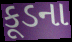
કૂડના